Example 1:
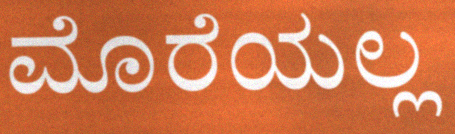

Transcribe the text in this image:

ಮೊರೆಯಲ್ಲ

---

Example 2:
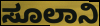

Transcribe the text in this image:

ಸೂಲಾನಿ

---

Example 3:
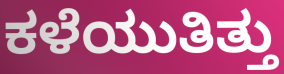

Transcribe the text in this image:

ಕಳೆಯುತಿತ್ತು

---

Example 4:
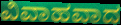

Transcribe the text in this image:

ವಿವಾಹವಾದ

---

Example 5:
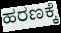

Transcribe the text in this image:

ಹರಣಕ್ಕೆ